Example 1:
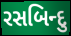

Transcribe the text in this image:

રસબિન્દુ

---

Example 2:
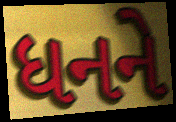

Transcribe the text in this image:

ધનને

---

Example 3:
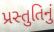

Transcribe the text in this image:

પ્રસ્તુતિનું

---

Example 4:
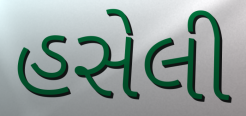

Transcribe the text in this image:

હસેલી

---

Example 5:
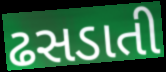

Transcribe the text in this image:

ઢસડાતી